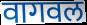
वागवल